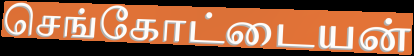
செங்கோட்டையன்